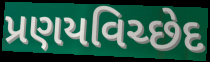
પ્રણયવિચ્છેદ